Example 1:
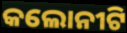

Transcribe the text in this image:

କଲୋନୀଟି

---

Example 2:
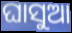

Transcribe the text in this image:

ଘାସୁଆ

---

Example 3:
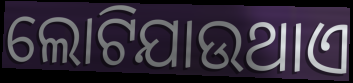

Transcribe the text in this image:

ଲୋଟିଯାଉଥାଏ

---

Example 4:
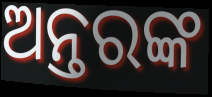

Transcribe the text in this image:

ଅନ୍ତରଙ୍କ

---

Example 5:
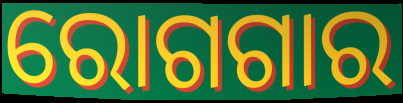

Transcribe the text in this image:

ରୋଗଗାର